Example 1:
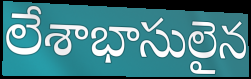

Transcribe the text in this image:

లేశాభాసులైన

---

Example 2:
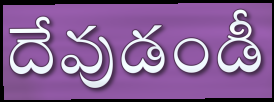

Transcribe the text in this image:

దేవుడండీ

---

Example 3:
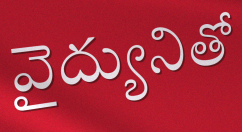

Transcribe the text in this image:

వైద్యునితో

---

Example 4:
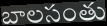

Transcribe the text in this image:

బాలసంతు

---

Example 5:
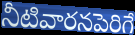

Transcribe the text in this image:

నీటివారనపెరిగే